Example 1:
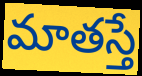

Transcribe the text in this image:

మాతస్తే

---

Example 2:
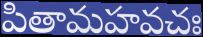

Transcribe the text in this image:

పితామహవచః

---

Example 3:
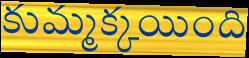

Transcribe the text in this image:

కుమ్మక్కయింది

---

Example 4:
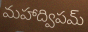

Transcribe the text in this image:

మహాద్విపమ్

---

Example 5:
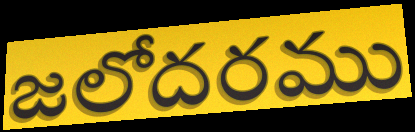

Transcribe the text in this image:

జలోదరము